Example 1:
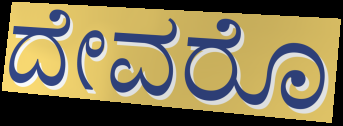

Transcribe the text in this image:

ದೇವರೊ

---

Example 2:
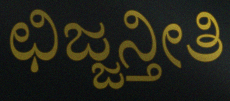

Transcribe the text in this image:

ಛಿಜ್ಜನ್ತೀತಿ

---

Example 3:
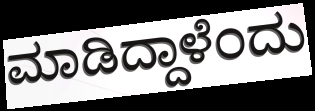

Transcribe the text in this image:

ಮಾಡಿದ್ದಾಳೆಂದು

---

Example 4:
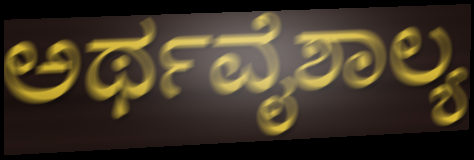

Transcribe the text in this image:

ಅರ್ಥವೈಶಾಲ್ಯ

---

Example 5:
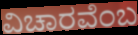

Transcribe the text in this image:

ವಿಚಾರವೆಂಬ